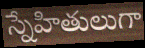
స్నేహితులుగా